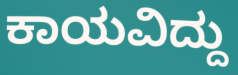
ಕಾಯವಿದ್ದು